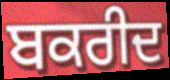
ਬਕਰੀਦ